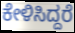
ಕೇಳಿಸಿದ್ದರೆ